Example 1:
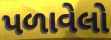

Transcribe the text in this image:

પળાવેલો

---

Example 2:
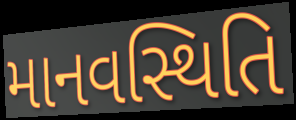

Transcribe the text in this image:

માનવસ્થિતિ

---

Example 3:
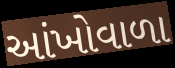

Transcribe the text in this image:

આંખોવાળા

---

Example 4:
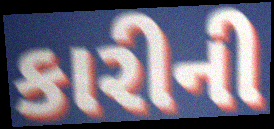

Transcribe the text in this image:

કારીની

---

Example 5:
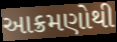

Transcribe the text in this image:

આક્રમણોથી